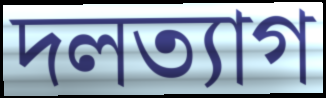
দলত্যাগ